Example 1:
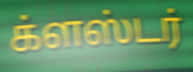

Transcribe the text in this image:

க்ளஸ்டர்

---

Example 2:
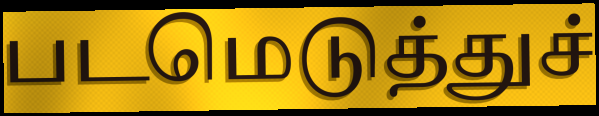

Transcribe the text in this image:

படமெடுத்துச்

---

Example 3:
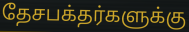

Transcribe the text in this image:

தேசபக்தர்களுக்கு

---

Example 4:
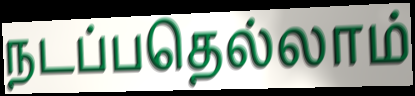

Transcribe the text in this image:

நடப்பதெல்லாம்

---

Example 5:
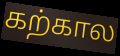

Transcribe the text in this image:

கற்கால